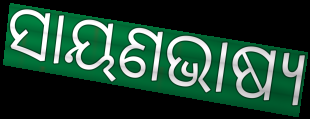
ସାୟଣଭାଷ୍ୟ